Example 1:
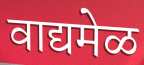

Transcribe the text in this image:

वाद्यमेळ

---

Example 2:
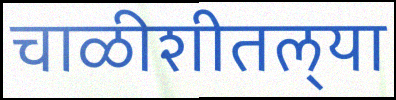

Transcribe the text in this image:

चाळीशीतल्या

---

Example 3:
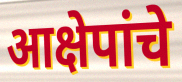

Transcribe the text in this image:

आक्षेपांचे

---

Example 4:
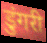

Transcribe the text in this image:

डुंगरी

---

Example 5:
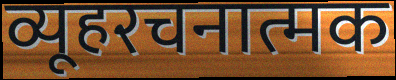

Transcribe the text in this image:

व्यूहरचनात्मक